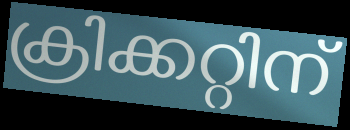
ക്രിക്കറ്റിന്